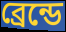
ব্রেন্ডে